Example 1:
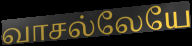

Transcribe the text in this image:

வாசல்லேயே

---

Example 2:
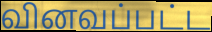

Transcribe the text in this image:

வினவப்பட்ட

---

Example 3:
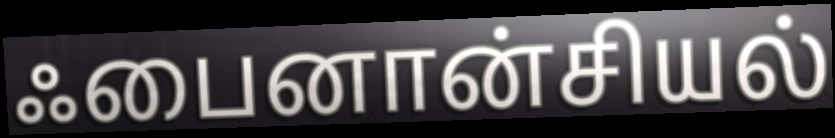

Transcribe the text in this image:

ஃபைனான்சியல்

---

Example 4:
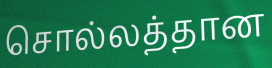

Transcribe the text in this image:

சொல்லத்தான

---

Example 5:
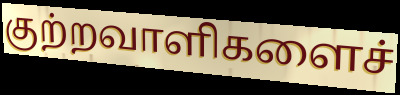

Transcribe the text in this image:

குற்றவாளிகளைச்